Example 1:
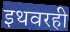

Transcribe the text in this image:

इथवरही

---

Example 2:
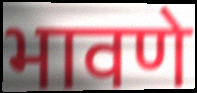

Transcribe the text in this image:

भावणे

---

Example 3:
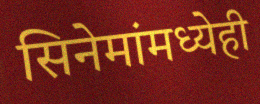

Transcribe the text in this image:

सिनेमांमध्येही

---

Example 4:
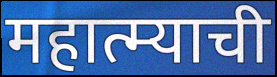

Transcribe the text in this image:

महात्म्याची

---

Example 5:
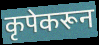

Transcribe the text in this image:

कृपेकरून